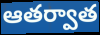
ఆతర్వాత